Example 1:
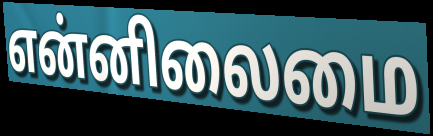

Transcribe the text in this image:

என்னிலைமை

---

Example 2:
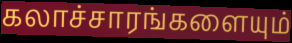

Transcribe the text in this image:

கலாச்சாரங்களையும்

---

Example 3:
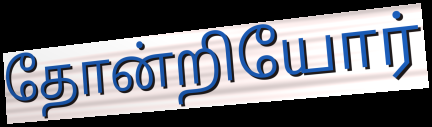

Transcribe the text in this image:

தோன்றியோர்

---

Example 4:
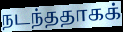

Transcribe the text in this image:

நடந்ததாகக்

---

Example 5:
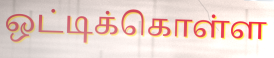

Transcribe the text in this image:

ஒட்டிக்கொள்ள